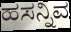
ಹಸನ್ನಿವ